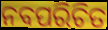
ନବପରିଚିତ